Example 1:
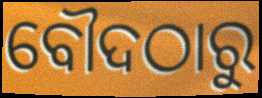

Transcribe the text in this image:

ବୌଦଠାରୁ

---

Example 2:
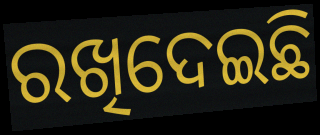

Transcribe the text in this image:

ରଖିଦେଇଛି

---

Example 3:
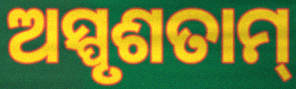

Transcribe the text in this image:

ଅସ୍ପୃଶତାମ୍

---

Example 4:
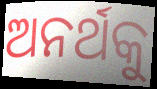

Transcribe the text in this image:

ଅନର୍ଥକୁ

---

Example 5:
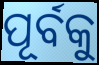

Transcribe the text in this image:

ପୂର୍ବକୁ